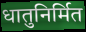
धातुनिर्मित